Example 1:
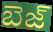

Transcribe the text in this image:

బెజ్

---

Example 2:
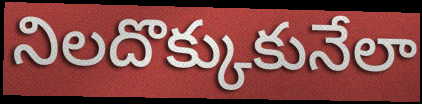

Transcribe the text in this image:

నిలదొక్కుకునేలా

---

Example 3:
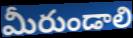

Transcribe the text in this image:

మీరుండాలి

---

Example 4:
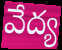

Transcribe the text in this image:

వేద్య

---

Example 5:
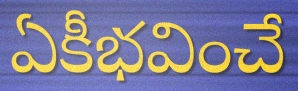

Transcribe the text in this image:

ఏకీభవించే